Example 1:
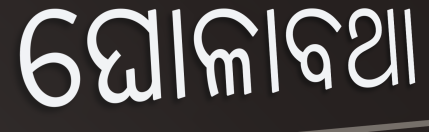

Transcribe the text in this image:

ଘୋଳାବଥା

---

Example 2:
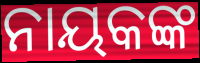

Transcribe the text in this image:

ନାୟକଙ୍କ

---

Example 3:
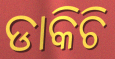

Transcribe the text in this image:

ଡାକିଚି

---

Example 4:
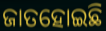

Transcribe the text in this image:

ଜାତହୋଇଛି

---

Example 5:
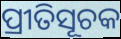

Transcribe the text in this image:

ପ୍ରୀତିସୂଚକ